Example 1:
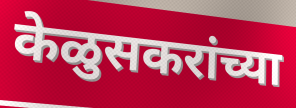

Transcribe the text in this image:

केळुसकरांच्या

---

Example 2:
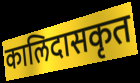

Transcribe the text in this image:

कालिदासकृत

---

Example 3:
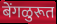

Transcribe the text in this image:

बेंगळुरूत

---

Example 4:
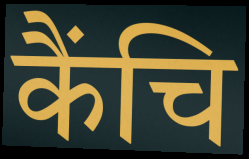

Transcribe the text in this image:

कैंचि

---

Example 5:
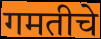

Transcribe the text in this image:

गमतीचे